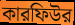
কারফিউর